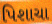
પિશાચા